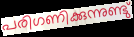
പരിഗണിക്കുന്നുണ്ടു്